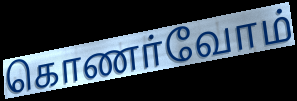
கொணர்வோம்